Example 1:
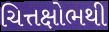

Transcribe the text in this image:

ચિત્તક્ષોભથી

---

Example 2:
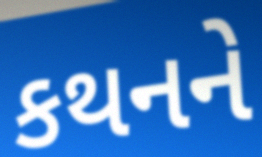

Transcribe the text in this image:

કથનને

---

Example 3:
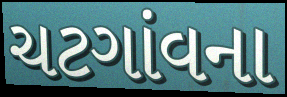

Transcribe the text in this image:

ચટગાંવના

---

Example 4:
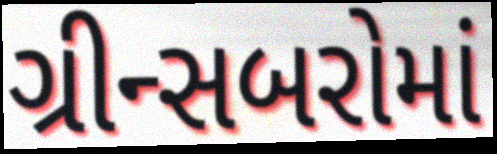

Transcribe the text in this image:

ગ્રીન્સબરોમાં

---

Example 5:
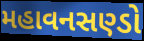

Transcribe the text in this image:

મહાવનસણ્ડો